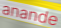
anande